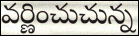
వర్ణించుచున్న